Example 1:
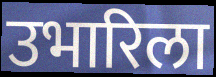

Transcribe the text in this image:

उभारिला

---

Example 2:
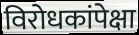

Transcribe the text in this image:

विरोधकांपेक्षा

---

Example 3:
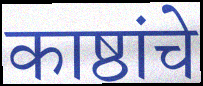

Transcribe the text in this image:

काष्ठांचे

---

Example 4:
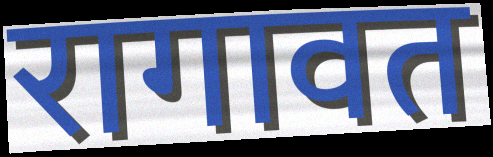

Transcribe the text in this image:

रागावत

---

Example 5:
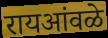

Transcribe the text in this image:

रायआंवळे